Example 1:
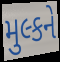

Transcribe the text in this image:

મુલ્કને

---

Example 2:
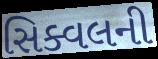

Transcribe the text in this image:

સિક્વલની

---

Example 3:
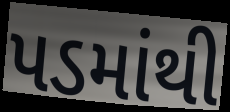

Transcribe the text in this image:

પડમાંથી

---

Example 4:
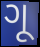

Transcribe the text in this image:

ગૂ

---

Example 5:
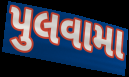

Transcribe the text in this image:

પુલવામા